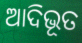
ଆଦିଭୂତ